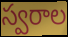
స్వరాల